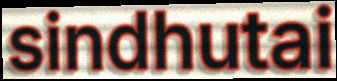
sindhutai